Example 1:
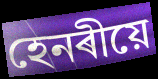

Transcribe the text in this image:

হেনৰীয়ে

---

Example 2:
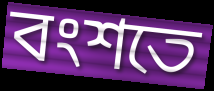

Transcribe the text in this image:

বংশতে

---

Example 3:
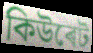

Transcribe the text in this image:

কিউৰেট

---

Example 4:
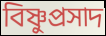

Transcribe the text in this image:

বিষ্ণুপ্ৰসাদ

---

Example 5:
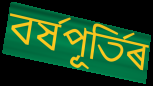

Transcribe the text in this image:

বৰ্ষপূৰ্তিৰ